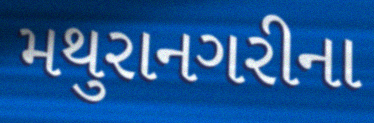
મથુરાનગરીના